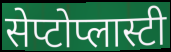
सेप्टोप्लास्टी